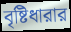
বৃষ্টিধারার